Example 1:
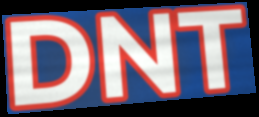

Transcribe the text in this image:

DNT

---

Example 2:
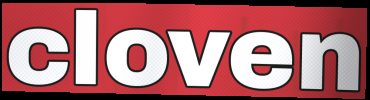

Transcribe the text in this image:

cloven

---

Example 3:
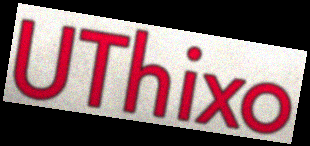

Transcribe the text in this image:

UThixo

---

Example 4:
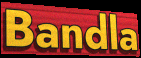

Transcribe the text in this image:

Bandla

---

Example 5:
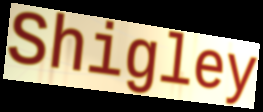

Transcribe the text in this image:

Shigley